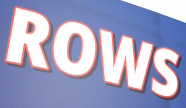
ROWS